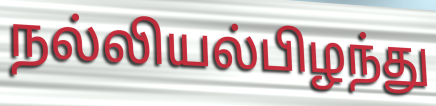
நல்லியல்பிழந்து